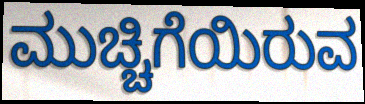
ಮುಚ್ಚಿಗೆಯಿರುವ